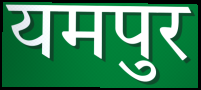
यमपुर